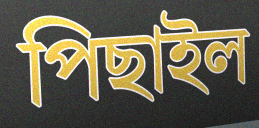
পিছাইল